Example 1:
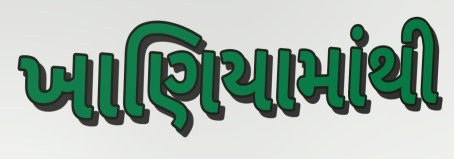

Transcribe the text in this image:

ખાણિયામાંથી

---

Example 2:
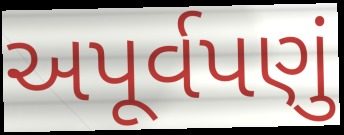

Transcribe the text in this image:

અપૂર્વપણું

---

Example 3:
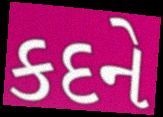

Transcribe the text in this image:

કદને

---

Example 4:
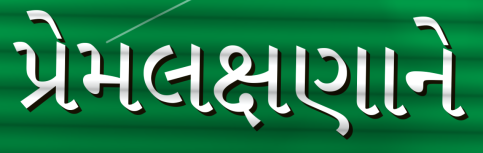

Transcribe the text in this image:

પ્રેમલક્ષણાને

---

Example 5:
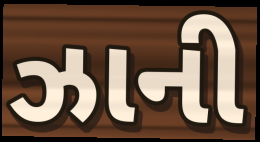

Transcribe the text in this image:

ઝાની